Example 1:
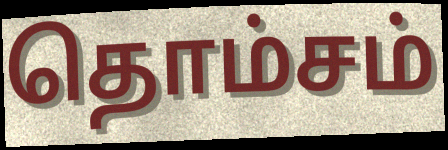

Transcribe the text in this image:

தொம்சம்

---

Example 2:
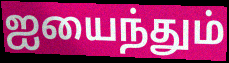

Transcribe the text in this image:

ஐயைந்தும்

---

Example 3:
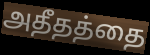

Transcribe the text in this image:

அதீதத்தை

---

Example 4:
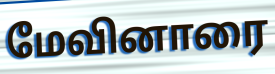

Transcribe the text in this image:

மேவினாரை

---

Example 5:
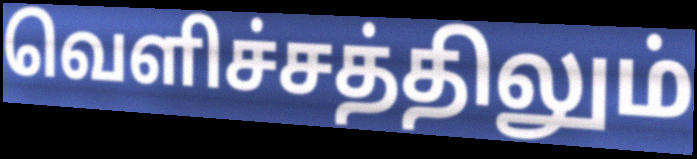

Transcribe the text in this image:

வெளிச்சத்திலும்